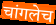
चांगलेच